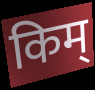
किम्